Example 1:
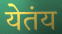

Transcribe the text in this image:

येतंय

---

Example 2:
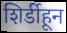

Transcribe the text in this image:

शिर्डीहून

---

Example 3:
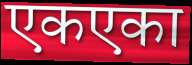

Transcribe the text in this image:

एकएका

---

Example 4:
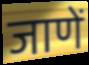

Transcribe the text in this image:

जाणें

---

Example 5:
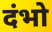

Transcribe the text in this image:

दंभो